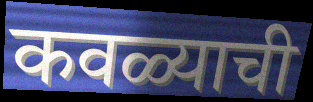
कवळ्याची